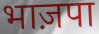
भाज़पा